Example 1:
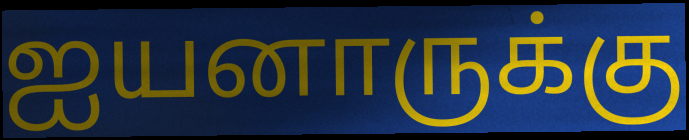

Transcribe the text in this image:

ஐயனாருக்கு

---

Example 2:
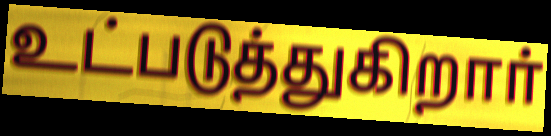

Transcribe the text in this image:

உட்படுத்துகிறார்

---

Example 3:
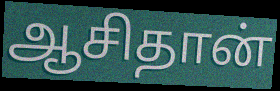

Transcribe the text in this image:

ஆசிதான்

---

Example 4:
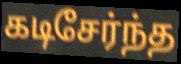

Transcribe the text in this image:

கடிசேர்ந்த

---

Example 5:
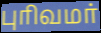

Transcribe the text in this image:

புரிவமர்